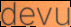
devu